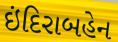
ઇંદિરાબહેન